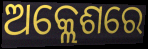
ଅକ୍ଲେଶରେ